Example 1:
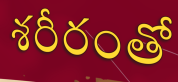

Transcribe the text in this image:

శరీరంతో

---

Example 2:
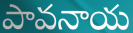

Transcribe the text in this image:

పావనాయ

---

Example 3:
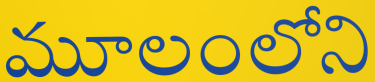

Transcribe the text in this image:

మూలంలోని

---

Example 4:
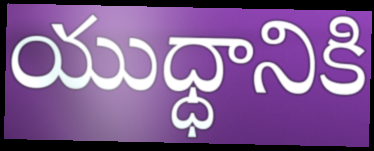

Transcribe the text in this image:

యుధ్ధానికి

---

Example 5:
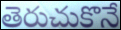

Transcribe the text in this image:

తెరుచుకొనే